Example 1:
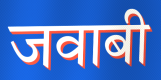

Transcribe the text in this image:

जवाबी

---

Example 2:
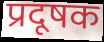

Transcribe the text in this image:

प्रदूषक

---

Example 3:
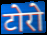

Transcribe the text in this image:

टोरो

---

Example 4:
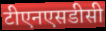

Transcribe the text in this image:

टीएनएसडीसी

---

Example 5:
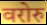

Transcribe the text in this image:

वरोरु